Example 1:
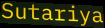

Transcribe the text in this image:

Sutariya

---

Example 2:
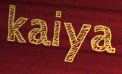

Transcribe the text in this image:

kaiya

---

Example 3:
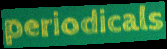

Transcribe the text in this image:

periodicals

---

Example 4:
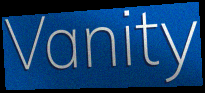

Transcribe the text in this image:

Vanity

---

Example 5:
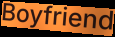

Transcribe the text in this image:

Boyfriend